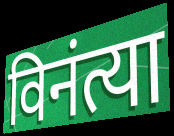
विनंत्या